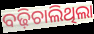
ବଢ଼ିଚାଲିଥିଲା